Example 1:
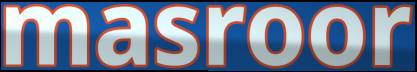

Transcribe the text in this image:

masroor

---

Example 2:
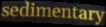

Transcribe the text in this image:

sedimentary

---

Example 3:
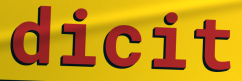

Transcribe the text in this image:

dicit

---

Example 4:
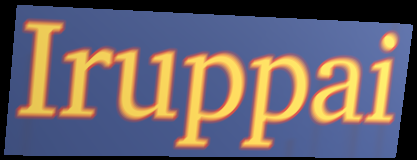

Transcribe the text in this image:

Iruppai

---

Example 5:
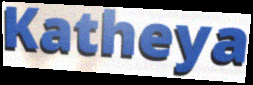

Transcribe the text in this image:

Katheya